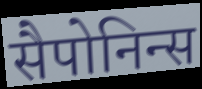
सैपोनिन्स